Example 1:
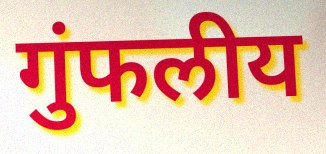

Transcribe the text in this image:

गुंफलीय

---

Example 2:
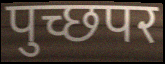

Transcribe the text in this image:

पुच्छपर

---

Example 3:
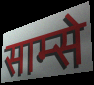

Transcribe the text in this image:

साम्से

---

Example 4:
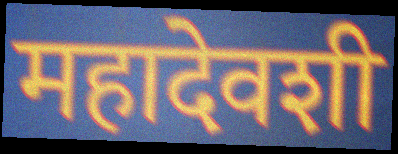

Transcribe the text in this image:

महादेवशी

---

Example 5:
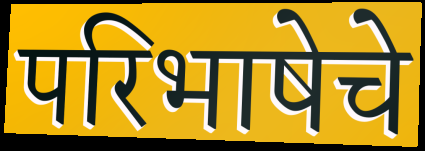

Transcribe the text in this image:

परिभाषेचे